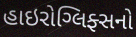
હાઇરોગ્લિફ્સનો